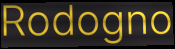
Rodogno